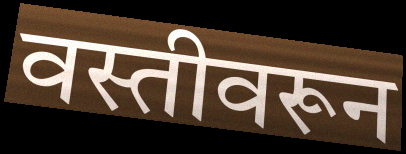
वस्तीवरून